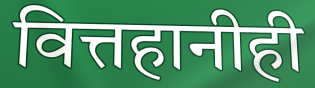
वित्तहानीही